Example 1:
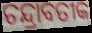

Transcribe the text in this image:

ଚନ୍ଦ୍ରାବତୀକ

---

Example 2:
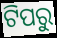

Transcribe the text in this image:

ଟିପରୁ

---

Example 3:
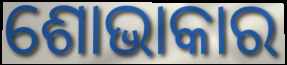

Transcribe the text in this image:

ଶୋଭାକାର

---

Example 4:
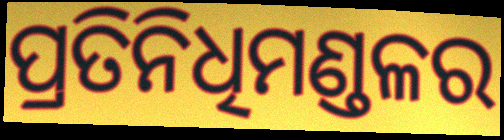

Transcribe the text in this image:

ପ୍ରତିନିଧିମଣ୍ଡଳର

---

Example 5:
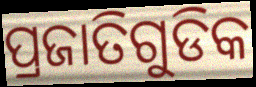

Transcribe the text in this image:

ପ୍ରଜାତିଗୁଡିକ